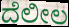
ದೆಲೀಲ